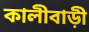
কালীবাড়ী